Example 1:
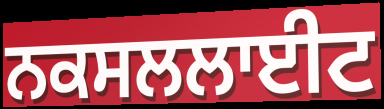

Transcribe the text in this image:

ਨਕਸਲਲਾਈਟ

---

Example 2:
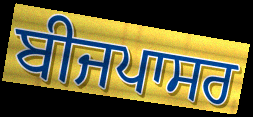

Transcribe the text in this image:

ਬੀਜਪਾਸਰ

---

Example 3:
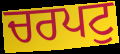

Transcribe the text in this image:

ਚਰਪਟੁ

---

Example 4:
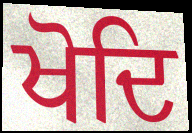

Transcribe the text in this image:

ਖੋਦਿ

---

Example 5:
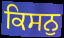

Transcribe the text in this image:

ਕਿਸਨੁ